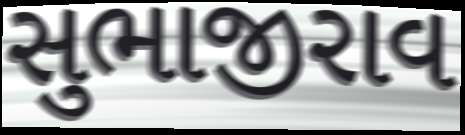
સુભાજીરાવ